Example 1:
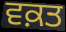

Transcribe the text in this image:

ਵਕ਼ਤ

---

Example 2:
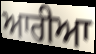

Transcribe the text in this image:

ਆਰੀਆ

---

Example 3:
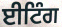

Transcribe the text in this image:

ਈਟਿੰਗ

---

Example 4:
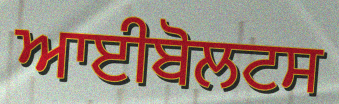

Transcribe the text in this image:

ਆਈਬੋਲਟਸ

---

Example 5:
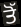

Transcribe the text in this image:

ਤੋੱ